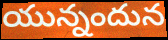
యున్నందున